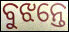
ବୁଝନ୍ତେ